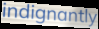
indignantly